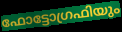
ഫോട്ടോഗ്രഫിയും